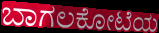
ಬಾಗಲಕೋಟೆಯ